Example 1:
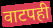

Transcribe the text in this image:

वाटपही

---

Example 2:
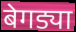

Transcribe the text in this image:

बेगड्या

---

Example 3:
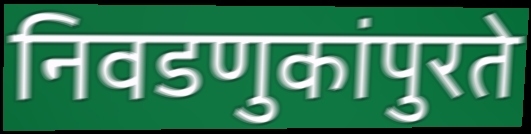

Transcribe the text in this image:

निवडणुकांपुरते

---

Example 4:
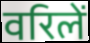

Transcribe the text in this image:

वरिलें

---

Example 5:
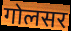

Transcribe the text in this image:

गोलसर